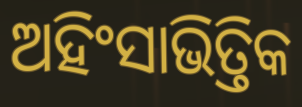
ଅହିଂସାଭିତ୍ତିକ